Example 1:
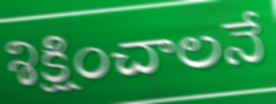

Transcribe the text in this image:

శిక్షించాలనే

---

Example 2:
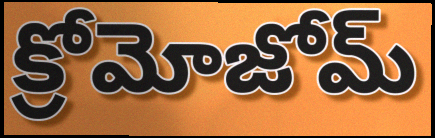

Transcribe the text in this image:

క్రోమోజోమ్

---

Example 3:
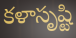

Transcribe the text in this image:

కళాసృష్టి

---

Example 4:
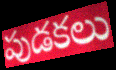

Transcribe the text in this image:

పుడకలు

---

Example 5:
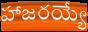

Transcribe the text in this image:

హాజరయ్యే